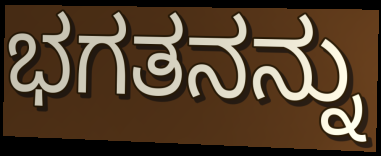
ಭಗತನನ್ನು